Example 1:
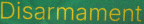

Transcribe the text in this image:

Disarmament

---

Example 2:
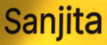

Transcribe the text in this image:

Sanjita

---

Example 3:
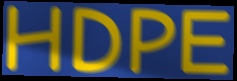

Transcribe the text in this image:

HDPE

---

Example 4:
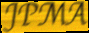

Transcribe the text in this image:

JPMA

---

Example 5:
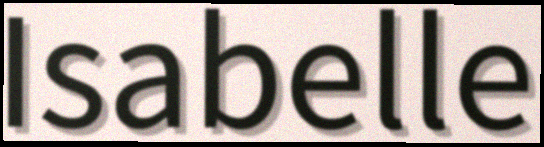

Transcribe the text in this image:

Isabelle